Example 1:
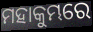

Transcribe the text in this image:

ମହାକୁମ୍ଭରେ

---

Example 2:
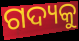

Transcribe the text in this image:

ଗଦ୍ୟକୁ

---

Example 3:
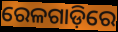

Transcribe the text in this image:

ରେଳଗାଡ଼ିରେ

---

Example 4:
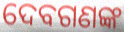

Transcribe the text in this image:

ଦେବଗଣଙ୍କ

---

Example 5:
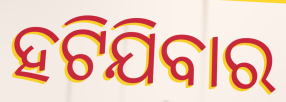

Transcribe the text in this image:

ହଟିଯିବାର